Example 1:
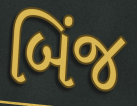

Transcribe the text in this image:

બિંજ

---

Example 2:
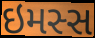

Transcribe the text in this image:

ઇમસ્સ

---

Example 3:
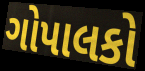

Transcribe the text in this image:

ગોપાલકો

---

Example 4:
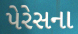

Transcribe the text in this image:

પેરેસના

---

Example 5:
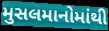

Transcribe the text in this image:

મુસલમાનોમાંથી